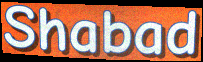
Shabad